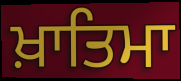
ਖ਼ਾਤਿਮਾ